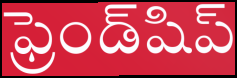
ఫ్రెండ్‌షిప్